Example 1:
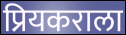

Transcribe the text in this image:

प्रियकराला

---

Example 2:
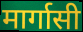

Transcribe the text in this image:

मार्गासी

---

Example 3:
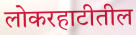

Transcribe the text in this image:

लोकरहाटीतील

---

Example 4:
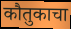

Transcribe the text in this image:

कौतुकाचा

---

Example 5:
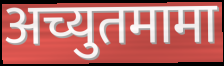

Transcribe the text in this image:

अच्युतमामा